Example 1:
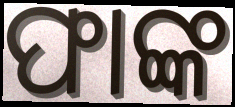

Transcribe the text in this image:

ଫାଙ୍କ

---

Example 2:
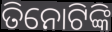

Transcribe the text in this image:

ତିନୋଟିଙ୍କି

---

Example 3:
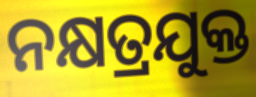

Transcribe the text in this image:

ନକ୍ଷତ୍ରଯୁକ୍ତ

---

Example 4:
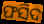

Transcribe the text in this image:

ଫସିଦ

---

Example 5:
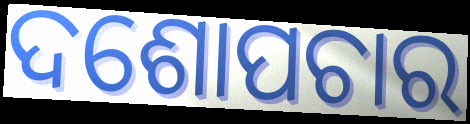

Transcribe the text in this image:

ଦଶୋପଚାର